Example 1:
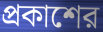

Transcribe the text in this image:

প্রকাশের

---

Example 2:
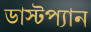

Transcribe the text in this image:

ডাস্টপ্যান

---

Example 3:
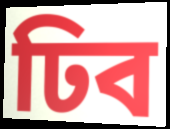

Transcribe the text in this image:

ঢিব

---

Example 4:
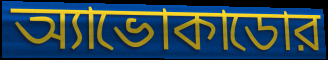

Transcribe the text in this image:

অ্যাভোকাডোর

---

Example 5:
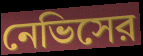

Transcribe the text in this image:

নেভিসের